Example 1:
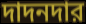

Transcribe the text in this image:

দাদনদার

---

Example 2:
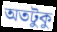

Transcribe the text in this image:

অতটুকু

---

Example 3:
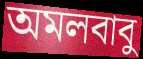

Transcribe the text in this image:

অমলবাবু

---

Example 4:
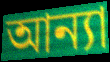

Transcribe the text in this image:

আন্যা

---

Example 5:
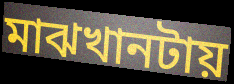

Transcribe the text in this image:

মাঝখানটায়